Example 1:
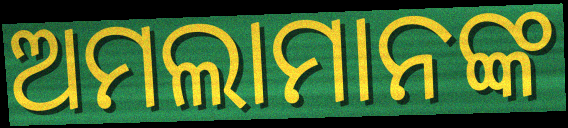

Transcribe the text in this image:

ଅମଲାମାନଙ୍କ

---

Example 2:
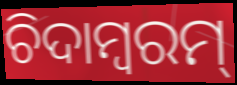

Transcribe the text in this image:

ଚିଦାମ୍ବରମ୍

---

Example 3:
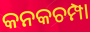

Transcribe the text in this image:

କନକଚମ୍ପା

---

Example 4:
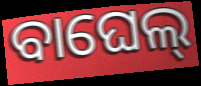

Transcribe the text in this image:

ବାଘେଲ୍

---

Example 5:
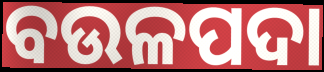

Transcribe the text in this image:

ବଉଳପଦା